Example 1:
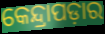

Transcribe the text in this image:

କେନ୍ଦ୍ରାପଡ଼ାର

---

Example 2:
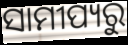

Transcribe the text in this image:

ସାମୀପ୍ୟରୁ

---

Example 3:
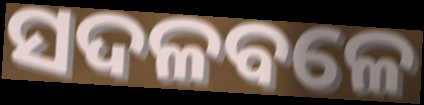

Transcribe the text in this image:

ସଦଳବଳେ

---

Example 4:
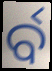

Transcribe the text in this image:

ର୍ବ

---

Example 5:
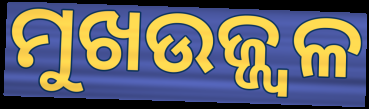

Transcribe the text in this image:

ମୁଖଉଜ୍ଜ୍ୱଳ